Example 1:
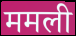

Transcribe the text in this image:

ममली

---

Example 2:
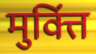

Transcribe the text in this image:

मुक्तिं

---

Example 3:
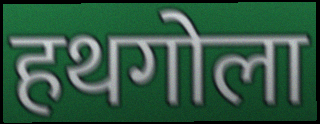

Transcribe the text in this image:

हथगोला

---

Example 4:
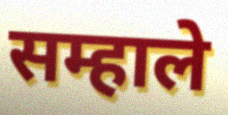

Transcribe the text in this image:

सम्हाले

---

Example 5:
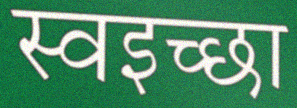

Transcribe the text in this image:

स्वइच्छा